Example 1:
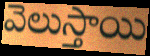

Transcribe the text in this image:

వెలుస్తాయి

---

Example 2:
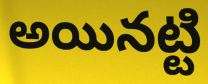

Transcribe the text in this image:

అయినట్టి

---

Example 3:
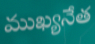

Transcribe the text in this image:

ముఖ్యనేత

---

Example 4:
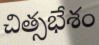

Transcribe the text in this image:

చిత్సభేశం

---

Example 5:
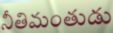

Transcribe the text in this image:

నీతిమంతుడు